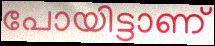
പോയിട്ടാണ്